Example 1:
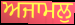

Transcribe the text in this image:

ਅਜਾਮਲੁ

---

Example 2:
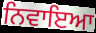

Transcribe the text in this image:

ਨਿਵਾਇਆ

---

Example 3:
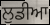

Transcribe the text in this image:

ਲੁਡੀਆ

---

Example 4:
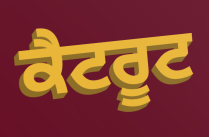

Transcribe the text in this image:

ਕੈਟਰੂਟ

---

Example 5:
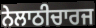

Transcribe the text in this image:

ਨੇਲਾਠੀਚਾਰਜ